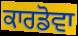
ਕਾਰਡੋਵਾ